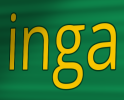
inga